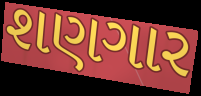
શણગાર